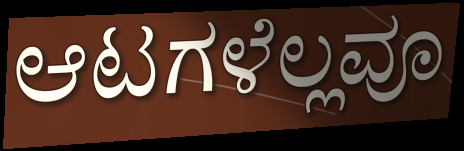
ಆಟಗಳೆಲ್ಲವೂ